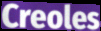
Creoles